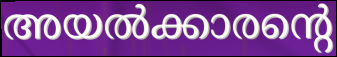
അയൽക്കാരന്റെ